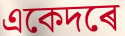
একেদৰে